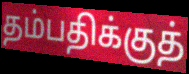
தம்பதிக்குத்